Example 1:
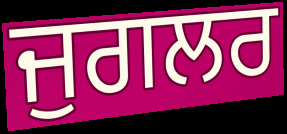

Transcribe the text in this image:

ਜੁਗਲਰ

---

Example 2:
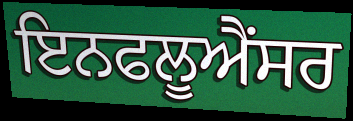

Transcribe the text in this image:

ਇਨਫਲੂਐਂਸਰ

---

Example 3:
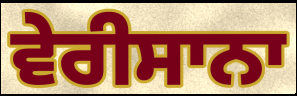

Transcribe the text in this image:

ਵੇਰੀਸਾਨਾ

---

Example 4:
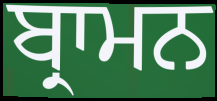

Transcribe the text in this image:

ਬ੍ਰਾਮਨ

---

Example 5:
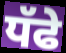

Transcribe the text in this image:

ਧੱਫੇ